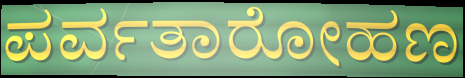
ಪರ್ವತಾರೋಹಣ